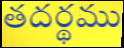
తదర్థము